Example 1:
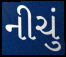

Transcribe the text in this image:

નીચું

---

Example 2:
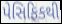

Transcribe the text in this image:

પેસિફિકથી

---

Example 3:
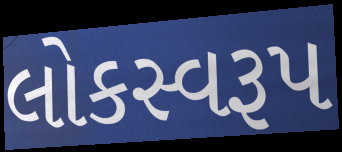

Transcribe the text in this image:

લોકસ્વરૂપ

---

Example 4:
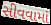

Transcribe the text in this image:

સીવવામાં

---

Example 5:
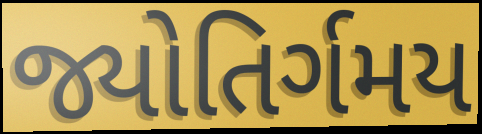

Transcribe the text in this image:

જ્યોતિર્ગમય